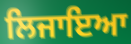
ਲਿਜਾਇਆ